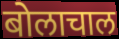
बोलाचाल